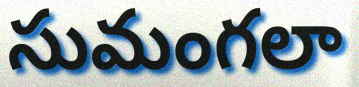
సుమంగలా